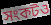
সংকটও